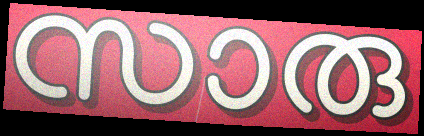
സാരു